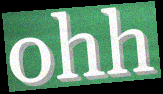
ohh